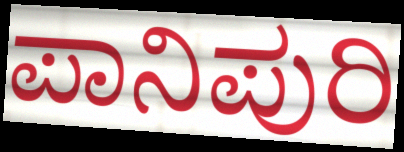
ಪಾನಿಪುರಿ